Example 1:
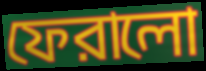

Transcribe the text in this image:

ফেরালো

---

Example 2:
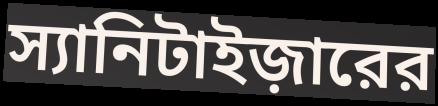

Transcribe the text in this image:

স্যানিটাইজ়ারের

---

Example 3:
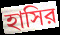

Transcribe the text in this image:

হাসির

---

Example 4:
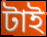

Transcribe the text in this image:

টাই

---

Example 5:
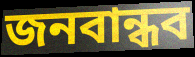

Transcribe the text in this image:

জনবান্ধব